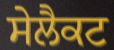
ਸੇਲੈਕਟ